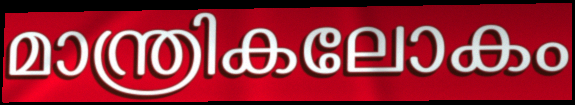
മാന്ത്രികലോകം